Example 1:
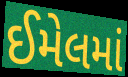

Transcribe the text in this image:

ઈમેલમાં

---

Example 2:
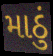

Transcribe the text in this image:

માઠું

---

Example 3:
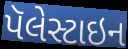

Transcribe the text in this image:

પૅલેસ્ટાઇન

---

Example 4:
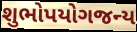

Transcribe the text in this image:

શુભોપયોગજન્ય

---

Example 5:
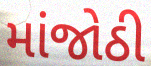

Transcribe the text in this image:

માંજોઠી